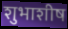
शुभाशीष